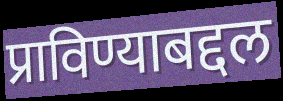
प्राविण्याबद्दल